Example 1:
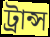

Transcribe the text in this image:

ট্ৰান্স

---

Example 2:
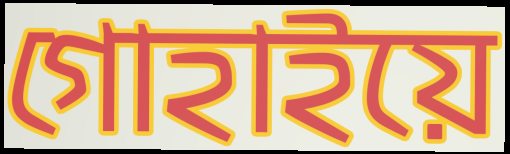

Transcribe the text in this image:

গোহাইয়ে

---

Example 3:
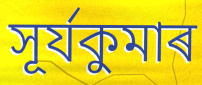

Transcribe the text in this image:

সূৰ্যকুমাৰ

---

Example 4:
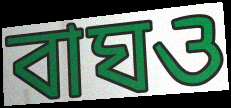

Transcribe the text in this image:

বাঘও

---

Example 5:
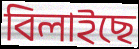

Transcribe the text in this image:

বিলাইছে